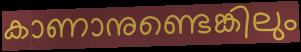
കാണാനുണ്ടെങ്കിലും